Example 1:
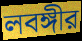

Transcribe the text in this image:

লবঙ্গীর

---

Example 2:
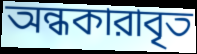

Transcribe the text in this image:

অন্ধকারাবৃত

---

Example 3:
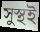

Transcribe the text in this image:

সুস্থই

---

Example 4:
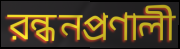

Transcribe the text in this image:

রন্ধনপ্রণালী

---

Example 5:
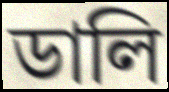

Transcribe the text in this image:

ডালি